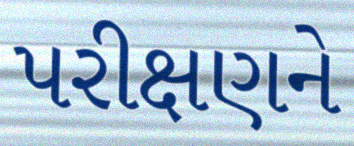
પરીક્ષણને